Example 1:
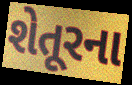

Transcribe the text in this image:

શેતૂરના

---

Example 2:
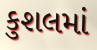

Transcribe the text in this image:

કુશલમાં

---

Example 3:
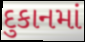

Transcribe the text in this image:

દુકાનમાં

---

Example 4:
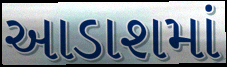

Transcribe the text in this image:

આડાશમાં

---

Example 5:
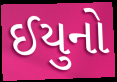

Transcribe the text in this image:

ઈયુનો